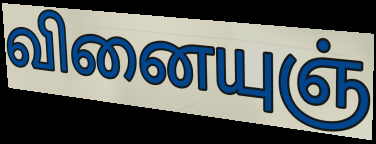
வினையுஞ்